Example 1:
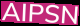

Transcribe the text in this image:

AIPSN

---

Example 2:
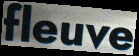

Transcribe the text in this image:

fleuve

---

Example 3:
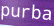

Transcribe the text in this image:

purba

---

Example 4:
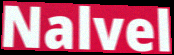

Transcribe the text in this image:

Nalvel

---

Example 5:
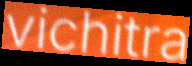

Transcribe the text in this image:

vichitra